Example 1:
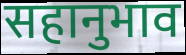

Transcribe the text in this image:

सहानुभाव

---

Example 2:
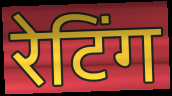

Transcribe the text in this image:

रेटिंग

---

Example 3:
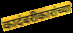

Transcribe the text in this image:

कादंबरीकारांच्या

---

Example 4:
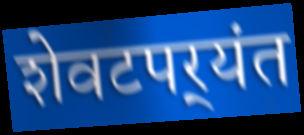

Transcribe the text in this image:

शेवटपर्यंत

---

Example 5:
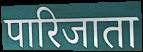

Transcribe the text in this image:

पारिजाता